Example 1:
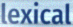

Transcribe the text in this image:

lexical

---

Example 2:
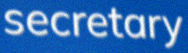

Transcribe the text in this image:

secretary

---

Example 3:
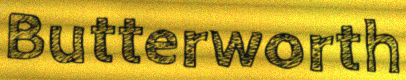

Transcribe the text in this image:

Butterworth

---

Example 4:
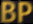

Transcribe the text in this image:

BP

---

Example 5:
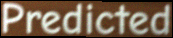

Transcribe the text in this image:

Predicted